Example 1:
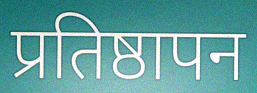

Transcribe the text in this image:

प्रतिष्ठापन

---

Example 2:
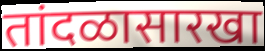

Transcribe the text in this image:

तांदळासारखा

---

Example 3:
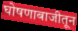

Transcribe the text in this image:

घोषणाबाजीतून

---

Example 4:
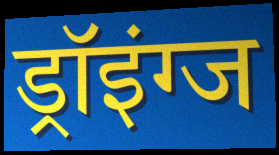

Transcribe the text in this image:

ड्रॉइंग्ज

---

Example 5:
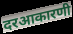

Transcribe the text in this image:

दरआकारणी